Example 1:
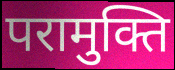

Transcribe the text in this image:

परामुक्ति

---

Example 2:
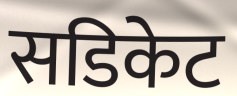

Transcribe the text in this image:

सडिकेट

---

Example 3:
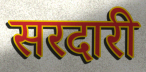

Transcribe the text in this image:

सरदारी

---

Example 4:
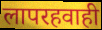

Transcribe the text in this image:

लापरहवाही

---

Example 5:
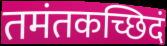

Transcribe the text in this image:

तमंतकच्छिदं